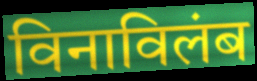
विनाविलंब